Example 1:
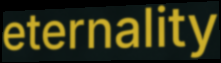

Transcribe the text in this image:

eternality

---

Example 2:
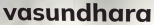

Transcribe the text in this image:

vasundhara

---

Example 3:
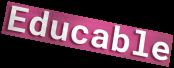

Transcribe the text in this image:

Educable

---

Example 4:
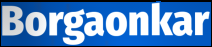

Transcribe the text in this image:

Borgaonkar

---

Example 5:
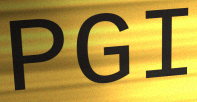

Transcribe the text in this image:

PGI